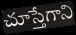
చూస్తేగాని